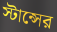
স্টান্সের